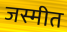
जस्मीत